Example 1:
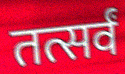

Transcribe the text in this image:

तत्सर्वं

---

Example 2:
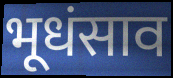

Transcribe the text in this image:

भूधंसाव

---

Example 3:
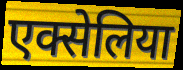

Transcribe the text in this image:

एक्सेलिया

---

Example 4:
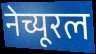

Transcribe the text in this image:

नेच्यूरल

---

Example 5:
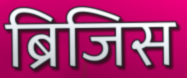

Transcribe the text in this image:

ब्रिजिस